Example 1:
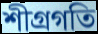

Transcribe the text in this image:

শীগ্রগতি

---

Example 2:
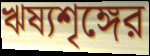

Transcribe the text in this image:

ঋষ্যশৃঙ্গের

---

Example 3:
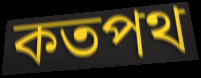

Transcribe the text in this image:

কতপথ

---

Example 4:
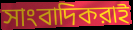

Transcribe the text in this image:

সাংবাদিকরাই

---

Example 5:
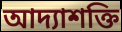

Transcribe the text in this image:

আদ্যাশক্তি